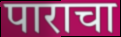
पाराचा